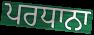
ਪਰਧਾਨਾ